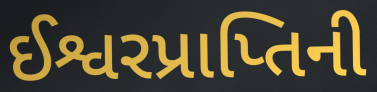
ઈશ્વરપ્રાપ્તિની